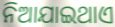
ନିଆଯାଇଥାଏ